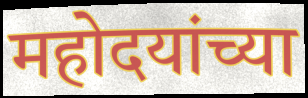
महोदयांच्या